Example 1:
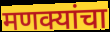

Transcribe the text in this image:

मणक्यांचा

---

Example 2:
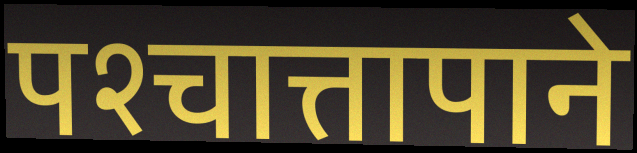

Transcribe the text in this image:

पश्चात्तापाने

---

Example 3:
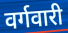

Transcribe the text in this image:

वर्गवारी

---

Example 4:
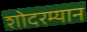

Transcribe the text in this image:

शोदरम्यान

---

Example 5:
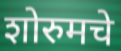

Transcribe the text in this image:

शोरुमचे